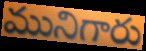
మునిగారు